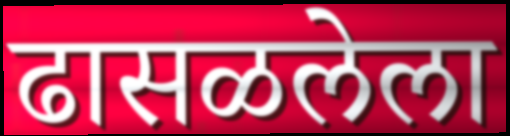
ढासळलेला